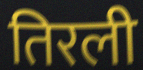
तिरली